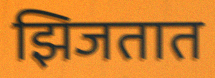
झिजतात